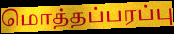
மொத்தப்பரப்பு